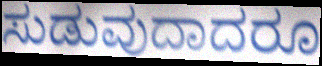
ಸುಡುವುದಾದರೂ